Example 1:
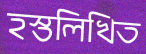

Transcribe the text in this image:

হস্তলিখিত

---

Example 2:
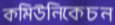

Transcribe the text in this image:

কমিউনিকেচন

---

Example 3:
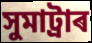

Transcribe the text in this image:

সুমাট্ৰাৰ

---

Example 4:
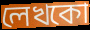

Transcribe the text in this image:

লেখকো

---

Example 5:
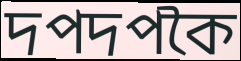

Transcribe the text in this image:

দপদপকৈ